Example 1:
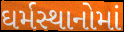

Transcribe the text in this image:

ઘર્મસ્થાનોમાં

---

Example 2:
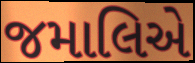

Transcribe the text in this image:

જમાલિએ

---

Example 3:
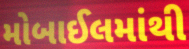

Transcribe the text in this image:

મોબાઈલમાંથી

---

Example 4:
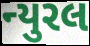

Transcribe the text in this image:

ન્યુરલ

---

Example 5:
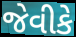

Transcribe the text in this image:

જેવીકે